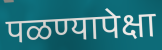
पळण्यापेक्षा